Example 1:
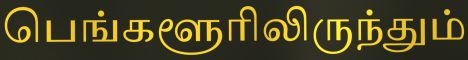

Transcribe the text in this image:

பெங்களூரிலிருந்தும்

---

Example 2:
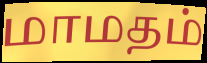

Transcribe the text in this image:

மாமதம்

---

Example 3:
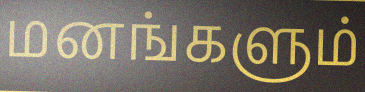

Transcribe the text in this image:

மனங்களும்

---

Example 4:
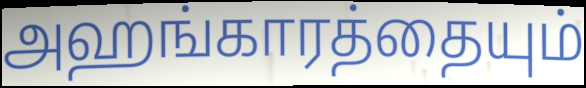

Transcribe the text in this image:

அஹங்காரத்தையும்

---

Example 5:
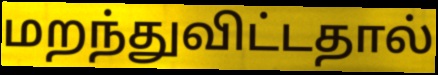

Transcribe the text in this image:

மறந்துவிட்டதால்